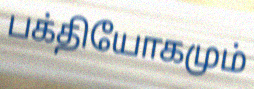
பக்தியோகமும்